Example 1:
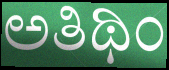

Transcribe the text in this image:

ಅತಿಥಿಂ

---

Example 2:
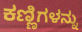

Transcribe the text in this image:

ಕಣ್ಣಿಗಳನ್ನು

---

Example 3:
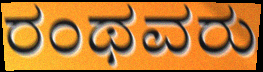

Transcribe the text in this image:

ರಂಥವರು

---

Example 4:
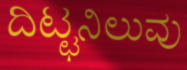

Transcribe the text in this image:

ದಿಟ್ಟನಿಲುವು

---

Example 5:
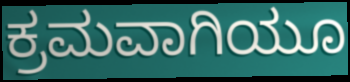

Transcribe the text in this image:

ಕ್ರಮವಾಗಿಯೂ